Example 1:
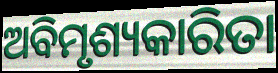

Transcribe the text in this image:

ଅବିମୃଶ୍ୟକାରିତା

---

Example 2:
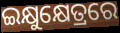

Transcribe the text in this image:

ଇକ୍ଷୁକ୍ଷେତ୍ରରେ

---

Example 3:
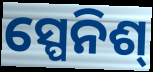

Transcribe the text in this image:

ସ୍ପେନିଶ୍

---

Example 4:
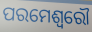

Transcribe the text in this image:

ପରମେଶ୍ଵରୌ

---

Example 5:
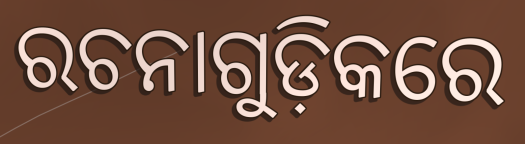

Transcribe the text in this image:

ରଚନାଗୁଡ଼ିକରେ